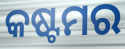
କଷ୍ଟମର